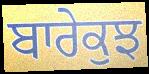
ਬਾਰੇਕੁਝ